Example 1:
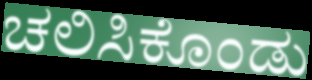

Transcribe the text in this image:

ಚಲಿಸಿಕೊಂಡು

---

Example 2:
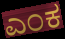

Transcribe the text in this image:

ಎಂಕ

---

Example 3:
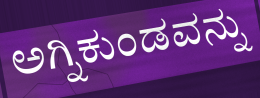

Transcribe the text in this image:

ಅಗ್ನಿಕುಂಡವನ್ನು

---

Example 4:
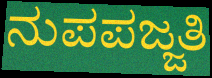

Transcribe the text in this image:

ನುಪಪಜ್ಜತಿ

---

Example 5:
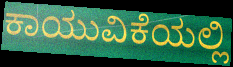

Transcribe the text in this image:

ಕಾಯುವಿಕೆಯಲ್ಲಿ